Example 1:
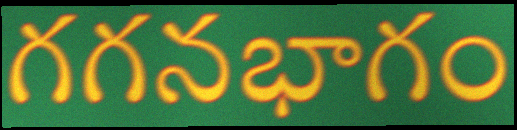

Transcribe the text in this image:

గగనభాగం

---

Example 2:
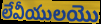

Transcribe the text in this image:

లేవీయులయొ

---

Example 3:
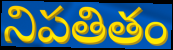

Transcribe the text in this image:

నిపతితం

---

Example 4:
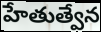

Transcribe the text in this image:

హేతుత్వేన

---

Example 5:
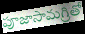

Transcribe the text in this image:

పూజాసామగ్రితో